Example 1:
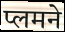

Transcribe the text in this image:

प्लमने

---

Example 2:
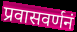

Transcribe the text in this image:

प्रवासवर्णनं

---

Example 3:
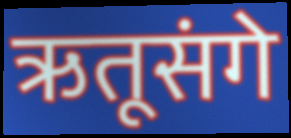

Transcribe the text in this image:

ऋतूसंगे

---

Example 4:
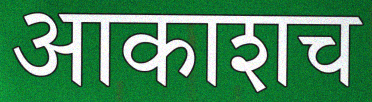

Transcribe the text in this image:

आकाशच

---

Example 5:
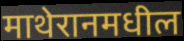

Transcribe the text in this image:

माथेरानमधील